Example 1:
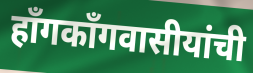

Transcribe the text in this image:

हाँगकाँगवासीयांची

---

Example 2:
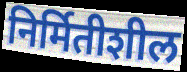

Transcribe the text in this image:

निर्मितीशील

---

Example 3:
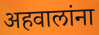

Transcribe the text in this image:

अहवालांना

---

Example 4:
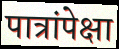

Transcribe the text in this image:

पात्रांपेक्षा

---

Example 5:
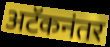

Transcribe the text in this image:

अटॅकनंतर